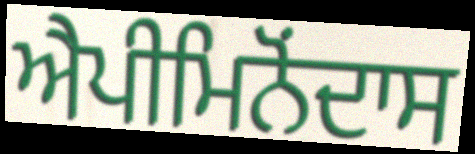
ਐਪੀਮਿਨੋਂਦਾਸ